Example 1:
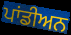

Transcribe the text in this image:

ਪਾਂਡੀਅਨ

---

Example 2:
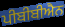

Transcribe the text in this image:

ਪੀਬੀਬੀਐਨ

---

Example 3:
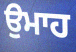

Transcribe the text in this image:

ਉਮਾਹ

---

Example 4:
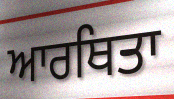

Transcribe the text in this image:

ਆਰਥਿਤਾ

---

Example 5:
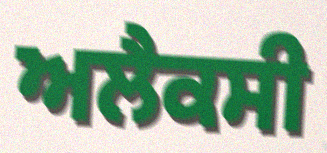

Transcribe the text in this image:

ਅਲੈਕਸੀ